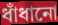
ধাঁধানো